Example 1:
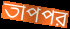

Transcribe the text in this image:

তাপপর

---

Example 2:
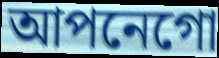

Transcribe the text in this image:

আপনেগো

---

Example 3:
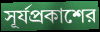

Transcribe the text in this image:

সূর্যপ্রকাশের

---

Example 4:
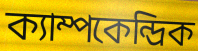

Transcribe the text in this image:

ক্যাম্পকেন্দ্রিক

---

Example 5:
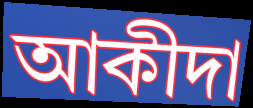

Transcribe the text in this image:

আকীদা